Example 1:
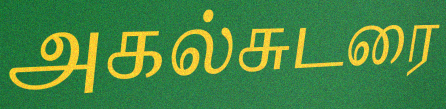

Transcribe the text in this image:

அகல்சுடரை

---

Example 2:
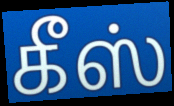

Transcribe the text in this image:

கீஸ்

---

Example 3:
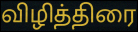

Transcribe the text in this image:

விழித்திரை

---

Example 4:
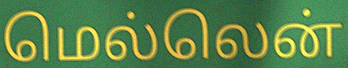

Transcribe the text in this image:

மெல்லென்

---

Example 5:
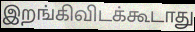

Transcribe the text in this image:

இறங்கிவிடக்கூடாது